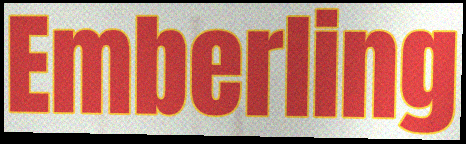
Emberling